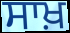
ਸਾਖ਼